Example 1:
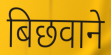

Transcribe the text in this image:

बिछवाने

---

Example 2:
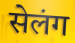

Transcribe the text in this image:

सेलंग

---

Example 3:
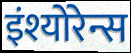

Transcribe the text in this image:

इंश्योरेन्स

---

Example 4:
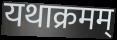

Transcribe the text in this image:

यथाक्रमम्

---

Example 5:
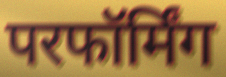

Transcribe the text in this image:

परफॉर्मिंग